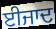
ਈਜਾਦ